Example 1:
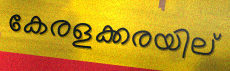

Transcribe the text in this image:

കേരളക്കരയില്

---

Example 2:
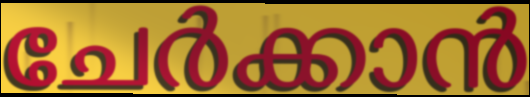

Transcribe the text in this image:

ചേർക്കാൻ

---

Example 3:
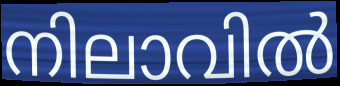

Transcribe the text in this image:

നിലാവിൽ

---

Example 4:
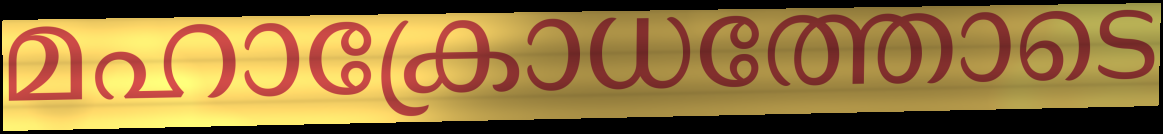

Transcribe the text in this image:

മഹാക്രോധത്തോടെ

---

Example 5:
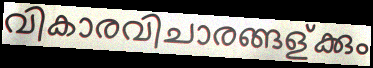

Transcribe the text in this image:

വികാരവിചാരങ്ങള്ക്കും